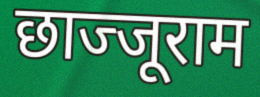
छाज्जूराम